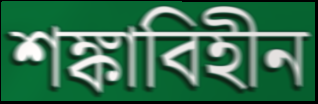
শঙ্কাবিহীন